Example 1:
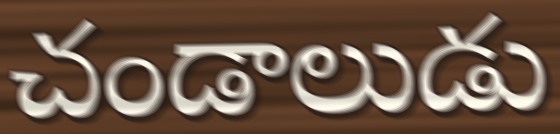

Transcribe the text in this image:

చండాలుడు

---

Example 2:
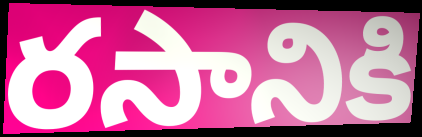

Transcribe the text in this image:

రసానికి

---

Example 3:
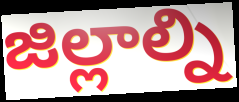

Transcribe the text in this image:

జిల్లాల్ని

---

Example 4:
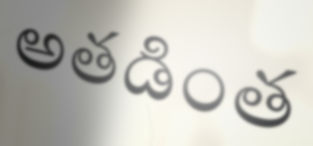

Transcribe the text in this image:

అతడింత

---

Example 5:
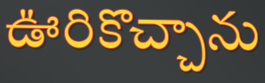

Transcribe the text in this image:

ఊరికొచ్చాను